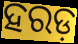
ହରଡ଼